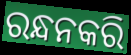
ରନ୍ଧନକରି